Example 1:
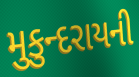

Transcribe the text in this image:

મુકુન્દરાયની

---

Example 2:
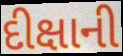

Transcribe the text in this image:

દીક્ષાની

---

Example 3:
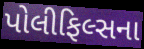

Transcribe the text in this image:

પોલીફિલ્સના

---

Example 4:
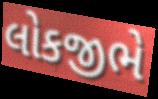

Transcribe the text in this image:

લોકજીભે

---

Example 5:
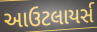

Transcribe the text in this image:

આઉટલાયર્સ